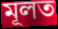
মূলত